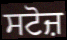
ਸਟੋਜ਼